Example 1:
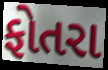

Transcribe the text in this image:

ફોતરા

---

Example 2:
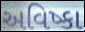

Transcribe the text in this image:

અવિષ્કા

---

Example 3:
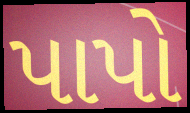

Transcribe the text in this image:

પાપો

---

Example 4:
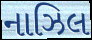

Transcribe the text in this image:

નાઝિલ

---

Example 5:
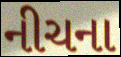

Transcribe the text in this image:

નીચના